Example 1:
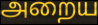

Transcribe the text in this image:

அறைய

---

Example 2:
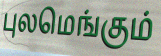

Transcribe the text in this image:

புலமெங்கும்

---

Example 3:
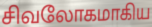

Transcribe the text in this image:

சிவலோகமாகிய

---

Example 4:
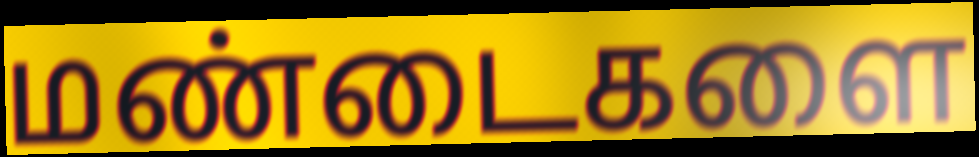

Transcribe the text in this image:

மண்டைகளை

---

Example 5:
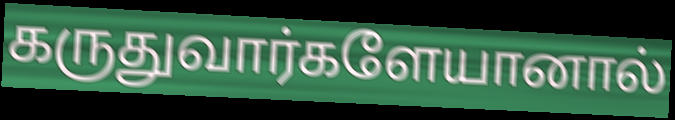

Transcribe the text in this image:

கருதுவார்களேயானால்